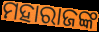
ମହାରାଜଙ୍କ